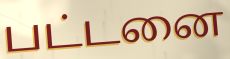
பட்டனை